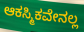
ಆಕಸ್ಮಿಕವೇನಲ್ಲ